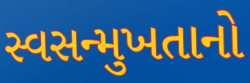
સ્વસન્મુખતાનો